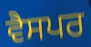
ਵੈਸਪਰ